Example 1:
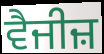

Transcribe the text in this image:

ਵੈਜੀਜ਼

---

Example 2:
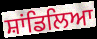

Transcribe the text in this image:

ਸ਼ਾਂਡਿਲਿਆ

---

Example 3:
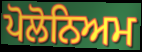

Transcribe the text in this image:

ਪੋਲੋਨਿਅਮ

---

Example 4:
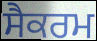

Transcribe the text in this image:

ਸੈਕਰਮ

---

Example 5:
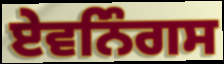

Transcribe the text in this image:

ਏਵਨਿੰਗਸ